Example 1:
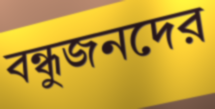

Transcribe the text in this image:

বন্ধুজনদের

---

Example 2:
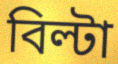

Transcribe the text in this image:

বিল্টা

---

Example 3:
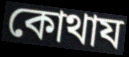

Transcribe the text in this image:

কোথায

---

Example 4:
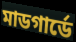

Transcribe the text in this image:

মাডগার্ডে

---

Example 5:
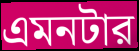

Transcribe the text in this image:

এমনটার